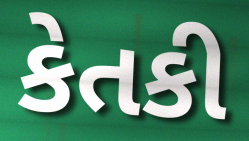
કેતકી